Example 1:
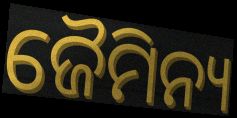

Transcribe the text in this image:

ଜୈମିନ୍ୟ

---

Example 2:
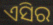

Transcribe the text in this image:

ଏସିର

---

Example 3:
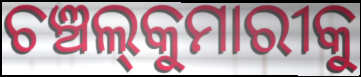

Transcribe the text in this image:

ଚଞ୍ଚଲ୍‍କୁମାରୀକୁ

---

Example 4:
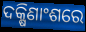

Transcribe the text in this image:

ଦକ୍ଷିଣାଂଶରେ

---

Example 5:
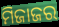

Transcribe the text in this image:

ମିଜାଜର